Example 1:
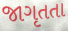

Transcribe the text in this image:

જાગૃતતા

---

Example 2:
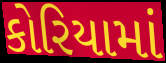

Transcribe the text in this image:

કોરિયામાં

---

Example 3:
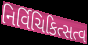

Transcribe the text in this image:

નિર્વિચિકિત્સત્વ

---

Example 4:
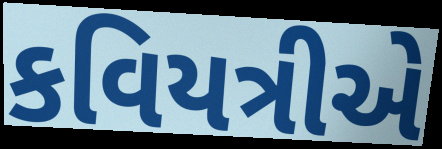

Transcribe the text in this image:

કવિયત્રીએ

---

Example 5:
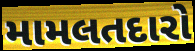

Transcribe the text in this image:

મામલતદારો